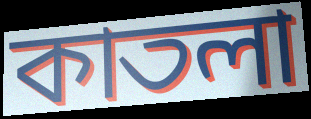
কাতলা